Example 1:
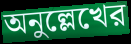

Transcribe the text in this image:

অনুল্লেখের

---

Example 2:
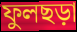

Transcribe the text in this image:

ফুলছড়া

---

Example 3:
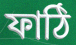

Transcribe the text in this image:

ফাঠি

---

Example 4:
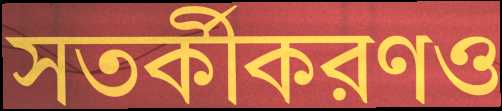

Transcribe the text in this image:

সতর্কীকরণও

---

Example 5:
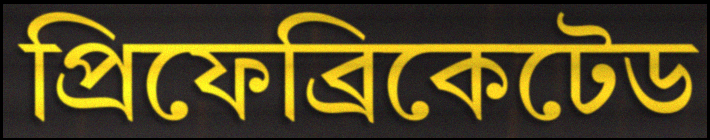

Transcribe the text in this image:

প্রিফেব্রিকেটেড